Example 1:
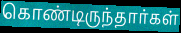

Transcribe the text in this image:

கொண்டிருந்தார்கள்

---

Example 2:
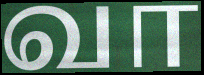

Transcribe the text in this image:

வா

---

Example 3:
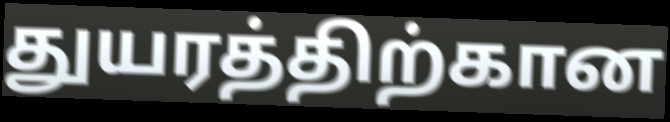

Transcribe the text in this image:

துயரத்திற்கான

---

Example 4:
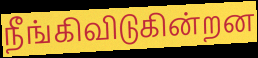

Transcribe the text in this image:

நீங்கிவிடுகின்றன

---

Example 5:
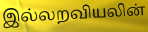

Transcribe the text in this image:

இல்லறவியலின்